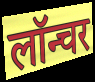
लॉन्चर